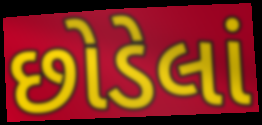
છોડેલાં